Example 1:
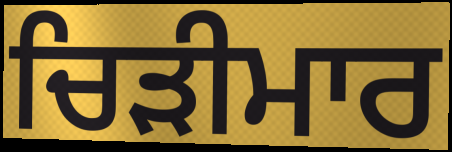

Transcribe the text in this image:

ਚਿੜੀਮਾਰ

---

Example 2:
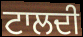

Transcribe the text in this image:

ਟਾਲਦੀ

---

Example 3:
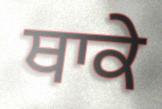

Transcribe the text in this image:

ਥਾਕੇ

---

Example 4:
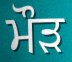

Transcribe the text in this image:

ਮੌਡ਼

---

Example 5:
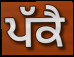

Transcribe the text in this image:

ਪੱਕੈ